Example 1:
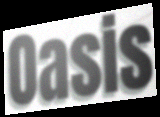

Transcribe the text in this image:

Oasis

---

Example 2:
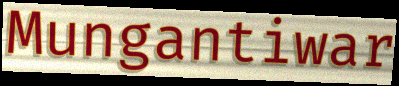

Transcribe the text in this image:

Mungantiwar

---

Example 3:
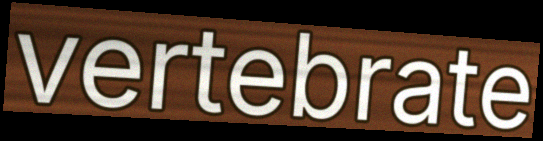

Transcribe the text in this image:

vertebrate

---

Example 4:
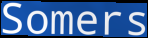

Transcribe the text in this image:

Somers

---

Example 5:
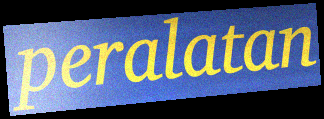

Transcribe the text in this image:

peralatan